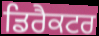
ਡਿਰੈਕਟਰ